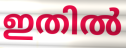
ഇതിൽ